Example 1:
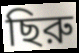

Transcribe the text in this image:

ছিরু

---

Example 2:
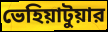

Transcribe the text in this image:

ভেহিয়াটুয়ার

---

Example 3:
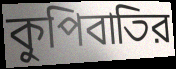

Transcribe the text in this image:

কুপিবাতির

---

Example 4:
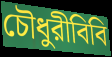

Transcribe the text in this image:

চৌধুরীবিবি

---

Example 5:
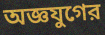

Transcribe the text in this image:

অজ্ঞযুগের